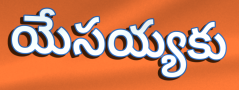
యేసయ్యకు